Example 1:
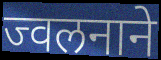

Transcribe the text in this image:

ज्वलनाने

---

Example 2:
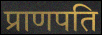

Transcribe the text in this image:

प्राणपति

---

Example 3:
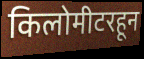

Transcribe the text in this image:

किलोमीटरहून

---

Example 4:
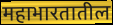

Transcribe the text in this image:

महाभारतातील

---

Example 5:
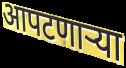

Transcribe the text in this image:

आपटणाऱ्या